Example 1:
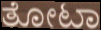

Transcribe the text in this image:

ತೋಟಾ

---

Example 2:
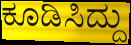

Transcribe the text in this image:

ಕೂಡಿಸಿದ್ದು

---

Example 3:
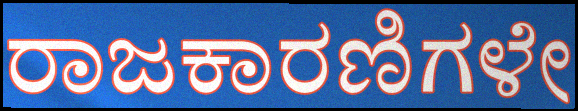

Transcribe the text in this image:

ರಾಜಕಾರಣಿಗಳೇ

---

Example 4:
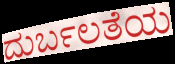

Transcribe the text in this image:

ದುರ್ಬಲತೆಯ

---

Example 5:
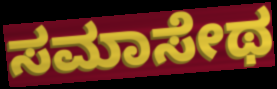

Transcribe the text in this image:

ಸಮಾಸೇಥ